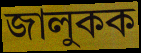
জালুকক